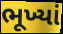
ભૂખ્યાં